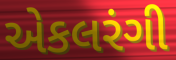
એકલરંગી